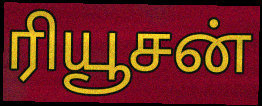
ரியூசன்